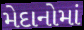
મેદાનોમાં